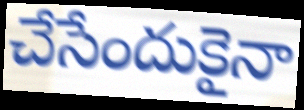
చేసేందుకైనా